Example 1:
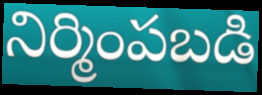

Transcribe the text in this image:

నిర్మింపబడి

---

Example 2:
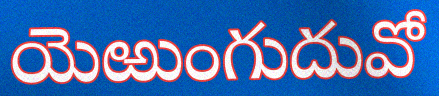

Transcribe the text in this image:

యెఱుంగుదువో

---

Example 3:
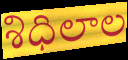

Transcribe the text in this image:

శిధిలాల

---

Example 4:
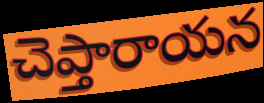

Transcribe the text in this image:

చెప్తారాయన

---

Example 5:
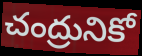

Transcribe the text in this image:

చంద్రునికో